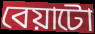
বেয়াটো